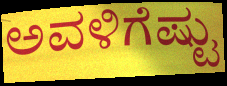
ಅವಳಿಗೆಷ್ಟು